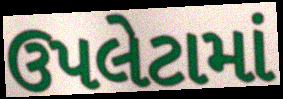
ઉપલેટામાં